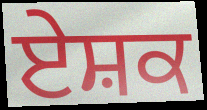
ਏਸ਼ਕ